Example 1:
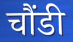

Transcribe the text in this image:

चौंडी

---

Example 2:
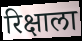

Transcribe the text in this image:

रिक्षाला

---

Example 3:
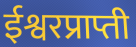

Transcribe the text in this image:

ईश्वरप्राप्ती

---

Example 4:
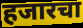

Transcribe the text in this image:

हजारचा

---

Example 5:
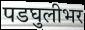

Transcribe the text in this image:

पडघुलीभर